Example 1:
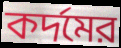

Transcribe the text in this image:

কর্দমের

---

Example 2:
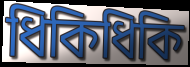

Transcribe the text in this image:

ধিকিধিকি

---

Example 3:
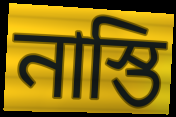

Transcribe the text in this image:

নাস্তি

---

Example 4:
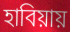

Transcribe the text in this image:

হাবিয়ায়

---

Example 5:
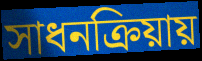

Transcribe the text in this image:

সাধনক্রিয়ায়